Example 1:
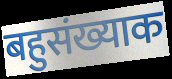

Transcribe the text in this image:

बहुसंख्याक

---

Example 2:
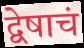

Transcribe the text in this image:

द्वेषाचं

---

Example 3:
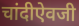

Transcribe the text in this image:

चांदीऐवजी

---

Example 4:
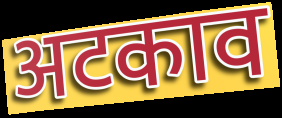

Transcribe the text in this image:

अटकाव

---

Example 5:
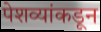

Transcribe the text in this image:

पेशव्यांकडून